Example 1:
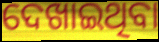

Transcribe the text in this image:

ଦେଖାଇଥିବା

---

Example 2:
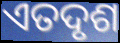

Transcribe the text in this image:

ଏତଦୃଶ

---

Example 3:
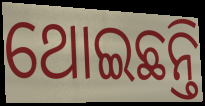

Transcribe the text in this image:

ଥୋଇଛନ୍ତି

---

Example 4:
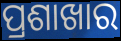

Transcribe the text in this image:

ପ୍ରଶାଖାର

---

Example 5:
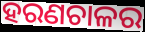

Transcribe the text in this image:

ହରଣଚାଳର